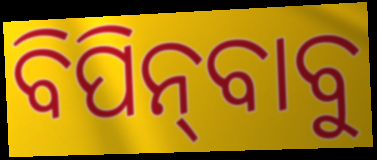
ବିପିନ୍‍ବାବୁ